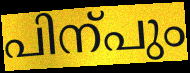
പിന്പും